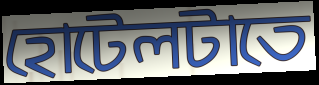
হোটেলটাতে